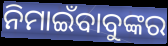
ନିମାଇଁବାବୁଙ୍କର